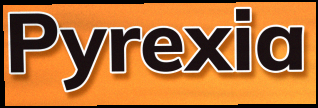
Pyrexia